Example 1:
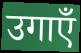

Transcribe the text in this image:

उगाएँ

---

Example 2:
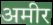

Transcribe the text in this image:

अमीर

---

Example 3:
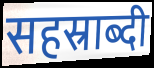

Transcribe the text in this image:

सहस्राब्दी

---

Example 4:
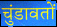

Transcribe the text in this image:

चुंडावतों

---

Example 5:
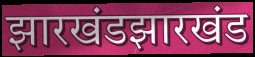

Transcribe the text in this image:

झारखंडझारखंड